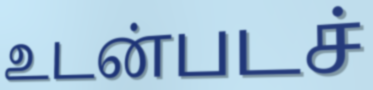
உடன்படச்